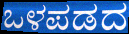
ಒಳಪಡದ